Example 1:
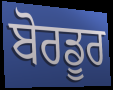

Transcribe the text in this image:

ਬੋਰਡੂਰ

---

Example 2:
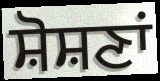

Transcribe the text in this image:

ਸ਼ੋਸ਼ਣਾਂ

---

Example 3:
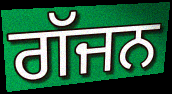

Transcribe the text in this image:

ਗੱਜਨ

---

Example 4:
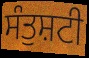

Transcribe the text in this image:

ਸੰਤੁਸ਼ਟੀ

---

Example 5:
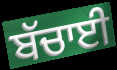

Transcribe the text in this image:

ਬੱਚਾਈ